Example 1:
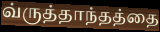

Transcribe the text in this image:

வ்ருத்தாந்தத்தை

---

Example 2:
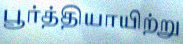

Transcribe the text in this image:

பூர்த்தியாயிற்று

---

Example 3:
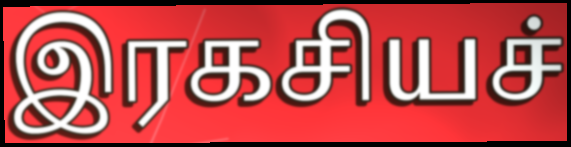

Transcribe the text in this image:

இரகசியச்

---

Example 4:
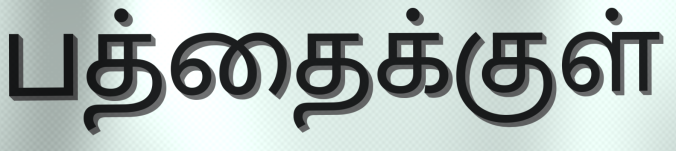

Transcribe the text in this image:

பத்தைக்குள்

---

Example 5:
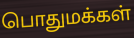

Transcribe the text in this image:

பொதுமக்கள்